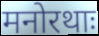
मनोरथाः